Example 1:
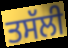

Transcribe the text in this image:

ਤਸੱਲੀ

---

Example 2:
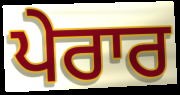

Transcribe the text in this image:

ਪੇਰਾਰ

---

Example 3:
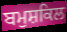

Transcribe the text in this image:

ਬਮੁਸ਼ਕਿਲ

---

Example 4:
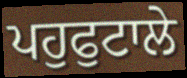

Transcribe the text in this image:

ਪਹੁਫੁਟਾਲੇ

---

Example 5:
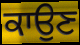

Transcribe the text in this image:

ਕਾਉਣ